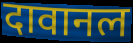
दावानल